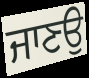
ਜਾਣਉ